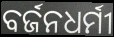
ବର୍ଜନଧର୍ମୀ